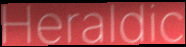
Heraldic